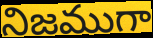
నిజముగా